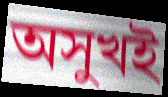
অসুখই